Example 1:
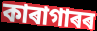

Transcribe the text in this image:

কাৰাগাৰৰ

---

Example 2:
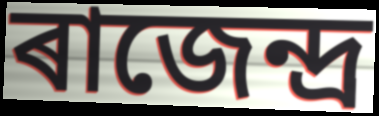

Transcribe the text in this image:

ৰাজেন্দ্ৰ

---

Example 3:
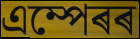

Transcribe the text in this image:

এম্পেৰৰ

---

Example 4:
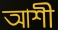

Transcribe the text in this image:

আশী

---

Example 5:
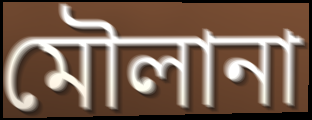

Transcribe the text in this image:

মৌলানা